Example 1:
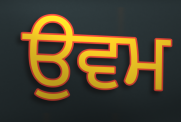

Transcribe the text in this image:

ਉਵਮ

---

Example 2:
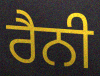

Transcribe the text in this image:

ਰੈਨੀ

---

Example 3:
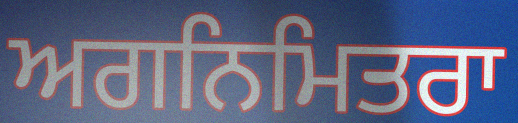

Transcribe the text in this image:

ਅਗਨਿਮਿਤਰਾ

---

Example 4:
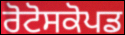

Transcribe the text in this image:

ਰੋਟੋਸਕੋਪਡ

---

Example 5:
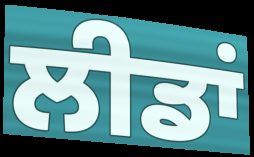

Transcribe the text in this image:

ਲੀਡਾਂ